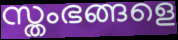
സ്തംഭങ്ങളെ